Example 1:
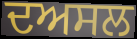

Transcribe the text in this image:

ਦਅਸਲ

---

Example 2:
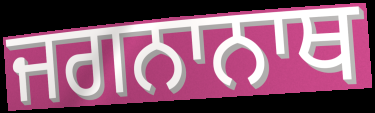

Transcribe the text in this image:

ਜਗਨਾਨਾਥ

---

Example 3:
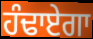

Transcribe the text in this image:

ਹੰਢਾਏਗਾ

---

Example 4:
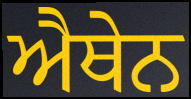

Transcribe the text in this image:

ਐਥੇਨ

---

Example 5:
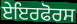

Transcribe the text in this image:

ਏਇਰਫੋਰਸ